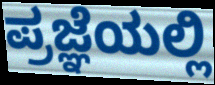
ಪ್ರಜ್ಞೆಯಲ್ಲಿ